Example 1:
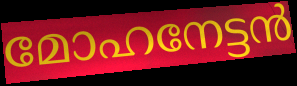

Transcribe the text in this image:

മോഹനേട്ടൻ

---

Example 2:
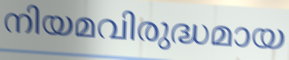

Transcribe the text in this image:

നിയമവിരുദ്ധമായ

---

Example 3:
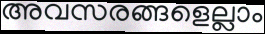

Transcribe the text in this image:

അവസരങ്ങളെല്ലാം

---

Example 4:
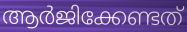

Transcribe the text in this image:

ആർജിക്കേണ്ടത്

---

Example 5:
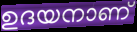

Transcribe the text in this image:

ഉദയനാണ്